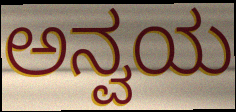
ಅನ್ವಯ